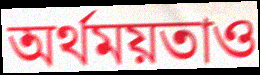
অর্থময়তাও